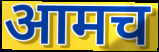
आमच